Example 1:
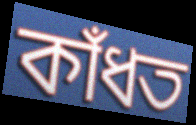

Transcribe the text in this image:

কাঁধত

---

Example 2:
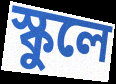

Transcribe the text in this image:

স্কুলে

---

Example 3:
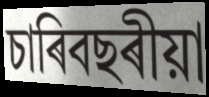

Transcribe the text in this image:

চাৰিবছৰীয়া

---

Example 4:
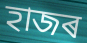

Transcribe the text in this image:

হাজৰ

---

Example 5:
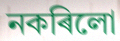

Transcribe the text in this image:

নকৰিলো